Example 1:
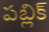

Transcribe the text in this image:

పబ్లిక్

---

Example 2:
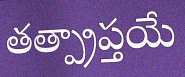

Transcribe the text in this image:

తత్ప్రాప్తయే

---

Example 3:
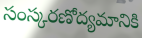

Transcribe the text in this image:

సంస్కరణోద్యమానికి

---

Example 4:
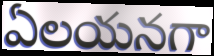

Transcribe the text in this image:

ఏలయనగా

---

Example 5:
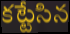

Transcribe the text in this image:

కట్టేసిన